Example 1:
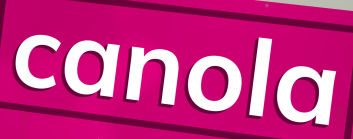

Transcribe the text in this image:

canola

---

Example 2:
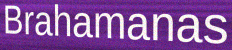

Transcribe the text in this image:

Brahamanas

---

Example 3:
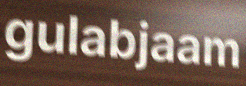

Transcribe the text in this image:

gulabjaam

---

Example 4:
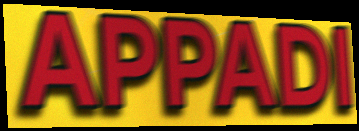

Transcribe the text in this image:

APPADI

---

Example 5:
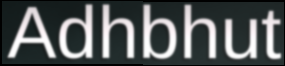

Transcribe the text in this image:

Adhbhut